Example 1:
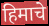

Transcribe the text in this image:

हिमाचे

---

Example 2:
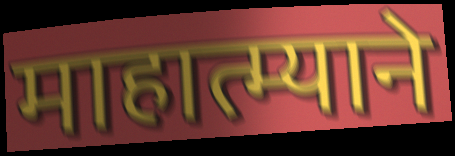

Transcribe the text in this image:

माहात्म्याने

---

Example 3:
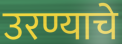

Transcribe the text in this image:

उरण्याचे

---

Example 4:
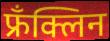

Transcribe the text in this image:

फ्रँक्लिन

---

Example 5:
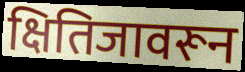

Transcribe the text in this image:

क्षितिजावरून